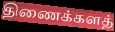
திணைக்களத்